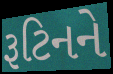
રૂટિનને